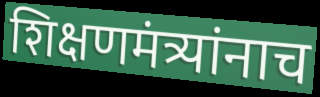
शिक्षणमंत्र्यांनाच